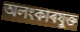
অলংকাৰযুক্ত